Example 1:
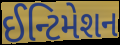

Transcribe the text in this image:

ઈન્ટિમેશન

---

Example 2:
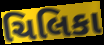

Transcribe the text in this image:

ચિલિકા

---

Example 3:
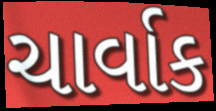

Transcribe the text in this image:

ચાર્વાક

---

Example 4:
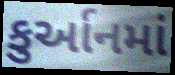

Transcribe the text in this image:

કુર્આનમાં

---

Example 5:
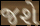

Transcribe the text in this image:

જશે